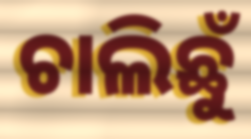
ଚାଲିଛୁଁ